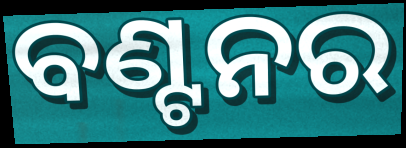
ବଣ୍ଟନର